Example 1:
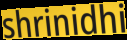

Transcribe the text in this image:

shrinidhi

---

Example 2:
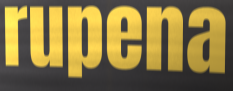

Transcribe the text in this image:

rupena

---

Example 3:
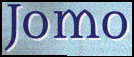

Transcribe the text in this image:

Jomo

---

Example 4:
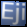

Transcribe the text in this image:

Eji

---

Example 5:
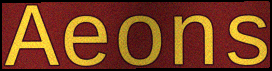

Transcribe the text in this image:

Aeons